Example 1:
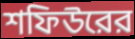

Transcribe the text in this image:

শফিউরের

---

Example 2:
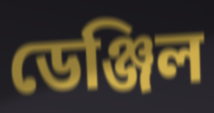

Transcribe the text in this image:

ডেঞ্জিল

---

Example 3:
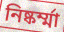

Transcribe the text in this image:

নিষ্কর্ম্মা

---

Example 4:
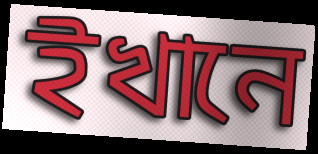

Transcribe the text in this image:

ইখানে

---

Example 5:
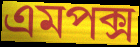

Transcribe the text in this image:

এমপক্স